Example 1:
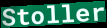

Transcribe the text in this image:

Stoller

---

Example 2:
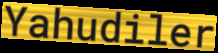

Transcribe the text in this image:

Yahudiler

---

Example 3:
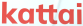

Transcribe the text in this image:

kattai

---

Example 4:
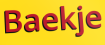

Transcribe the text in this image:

Baekje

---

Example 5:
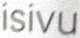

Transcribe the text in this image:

isivu